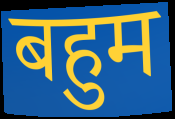
बहुम